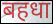
बहधा